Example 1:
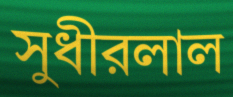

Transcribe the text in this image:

সুধীরলাল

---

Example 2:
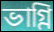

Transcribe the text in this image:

ভাগ্নি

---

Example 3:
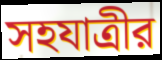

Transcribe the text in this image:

সহযাত্রীর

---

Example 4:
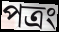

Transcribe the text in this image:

পত্রং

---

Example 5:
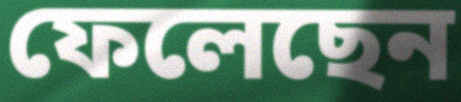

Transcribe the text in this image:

ফেলেছেন